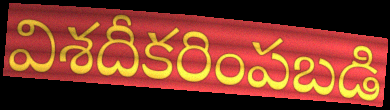
విశదీకరింపబడి